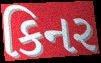
કિનર